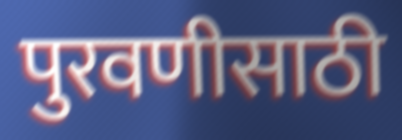
पुरवणीसाठी